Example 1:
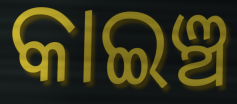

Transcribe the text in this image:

କାଇଞ୍ଚ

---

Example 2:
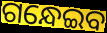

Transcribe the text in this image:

ଗନ୍ଧେଇବ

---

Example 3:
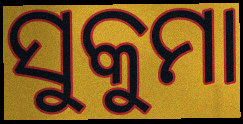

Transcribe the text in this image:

ସୁକୁମା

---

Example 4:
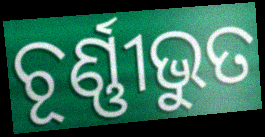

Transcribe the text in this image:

ଚୂର୍ଣ୍ଣୀଭୁତ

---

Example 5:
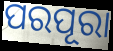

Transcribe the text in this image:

ପରପୂରା